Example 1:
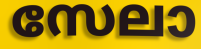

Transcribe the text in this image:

സേലാ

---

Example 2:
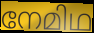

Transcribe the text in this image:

നേമിഥ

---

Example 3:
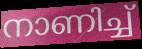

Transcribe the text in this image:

നാണിച്ച്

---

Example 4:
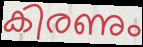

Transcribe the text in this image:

കിരണും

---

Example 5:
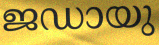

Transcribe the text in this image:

ജഡായു